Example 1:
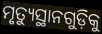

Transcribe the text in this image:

ମୃତ୍ୟୁସ୍ଥାନଗୁଡ଼ିକୁ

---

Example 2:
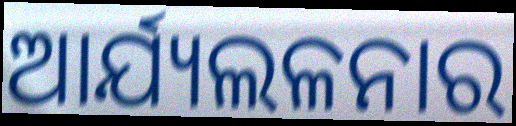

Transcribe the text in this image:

ଆର୍ଯ୍ୟଲଳନାର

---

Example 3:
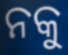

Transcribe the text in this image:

ନକୁ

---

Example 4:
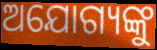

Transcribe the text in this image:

ଅଯୋଗ୍ୟଙ୍କୁ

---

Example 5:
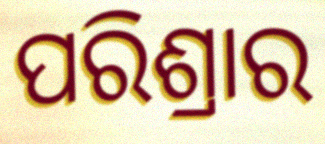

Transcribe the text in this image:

ପରିଶ୍ରାର